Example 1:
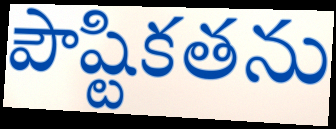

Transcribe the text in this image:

పౌష్టికతను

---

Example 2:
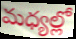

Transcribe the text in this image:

మధ్యల్లో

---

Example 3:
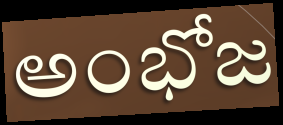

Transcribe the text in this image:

అంభోజ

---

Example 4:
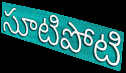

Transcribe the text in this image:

సూటిపోటి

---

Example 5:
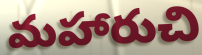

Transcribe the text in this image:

మహారుచి